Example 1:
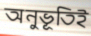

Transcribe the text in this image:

অনুভূতিই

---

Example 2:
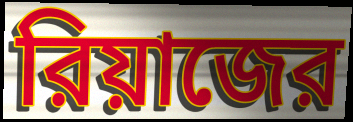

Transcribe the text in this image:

রিয়াজের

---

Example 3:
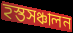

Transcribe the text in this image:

হস্তসঞ্চালন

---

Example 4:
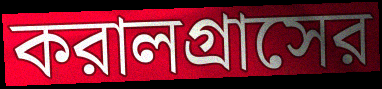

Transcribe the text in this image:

করালগ্রাসের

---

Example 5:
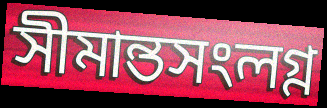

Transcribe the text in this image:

সীমান্তসংলগ্ন